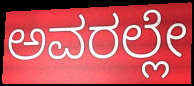
ಅವರಲ್ಲೇ